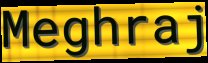
Meghraj